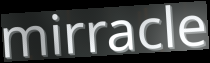
mirracle